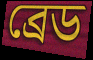
ব্রেড